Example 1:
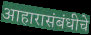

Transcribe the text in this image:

आहारासंबंधीचे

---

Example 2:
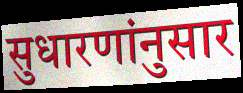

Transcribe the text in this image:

सुधारणांनुसार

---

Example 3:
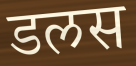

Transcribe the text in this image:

डलस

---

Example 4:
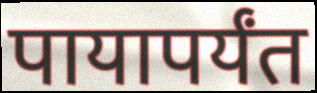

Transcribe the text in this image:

पायापर्यंत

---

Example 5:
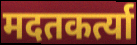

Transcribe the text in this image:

मदतकर्त्या